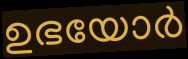
ഉഭയോർ